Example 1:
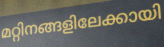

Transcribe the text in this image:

മറ്റിനങ്ങളിലേക്കായി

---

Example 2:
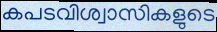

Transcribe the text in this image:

കപടവിശ്വാസികളുടെ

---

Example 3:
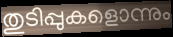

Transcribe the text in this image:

തുടിപ്പുകളൊന്നും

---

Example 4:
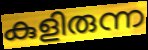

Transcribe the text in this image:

കുളിരുന്ന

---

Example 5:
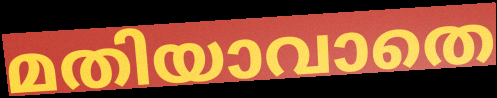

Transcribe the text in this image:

മതിയാവാതെ